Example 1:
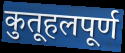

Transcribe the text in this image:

कुतूहलपूर्ण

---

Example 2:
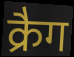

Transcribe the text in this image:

क्रैग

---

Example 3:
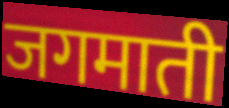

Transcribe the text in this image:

जगमाती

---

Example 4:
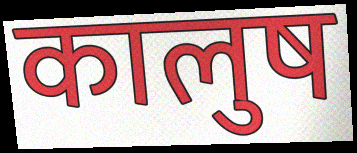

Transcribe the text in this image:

कालुष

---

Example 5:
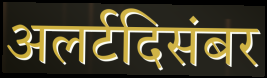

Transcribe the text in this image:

अलर्टदिसंबर